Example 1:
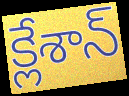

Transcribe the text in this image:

క్లేశాన్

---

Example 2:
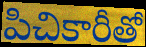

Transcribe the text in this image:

పిచికారీతో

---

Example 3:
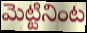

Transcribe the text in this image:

మెట్టినింట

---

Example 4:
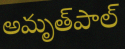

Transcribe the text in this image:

అమృత్‌పాల్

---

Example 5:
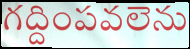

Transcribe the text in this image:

గద్దింపవలెను